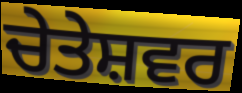
ਚੇਤੇਸ਼ਵਰ